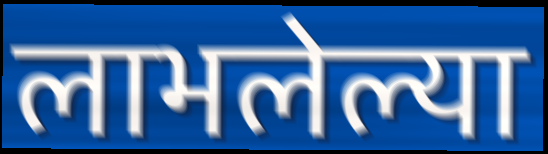
लाभलेल्या